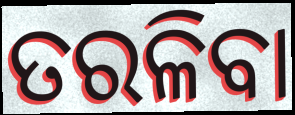
ତରଳିବା